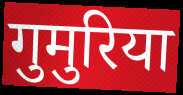
गुमुरिया